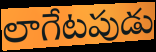
లాగేటపుడు